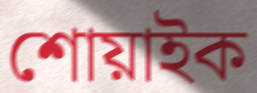
শোয়াইক